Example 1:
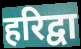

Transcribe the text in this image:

हरिद्वा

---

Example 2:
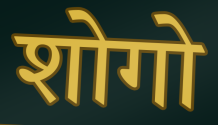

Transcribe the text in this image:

शोगो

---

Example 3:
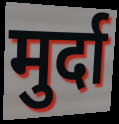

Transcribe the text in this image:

मुर्दा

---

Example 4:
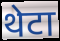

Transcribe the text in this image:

थेटा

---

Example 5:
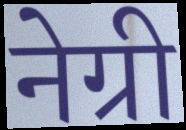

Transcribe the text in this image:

नेग्री